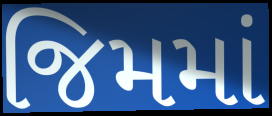
જિમમાં